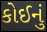
કોઈનું